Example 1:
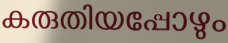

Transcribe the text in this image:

കരുതിയപ്പോഴും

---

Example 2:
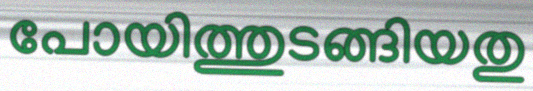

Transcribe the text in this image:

പോയിത്തുടങ്ങിയതു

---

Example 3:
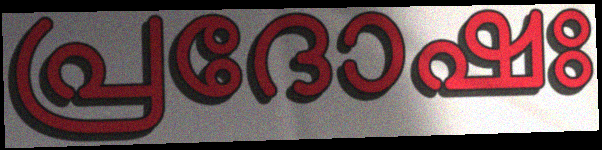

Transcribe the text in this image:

പ്രദോഷഃ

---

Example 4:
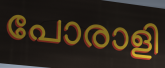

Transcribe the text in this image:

പോരാളി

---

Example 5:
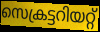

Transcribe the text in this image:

സെക്രട്ടറിയറ്റ്